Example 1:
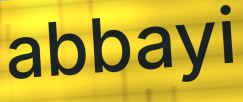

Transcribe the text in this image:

abbayi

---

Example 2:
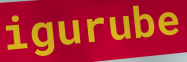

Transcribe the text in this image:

igurube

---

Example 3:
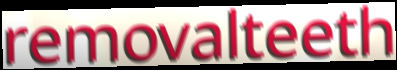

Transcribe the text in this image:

removalteeth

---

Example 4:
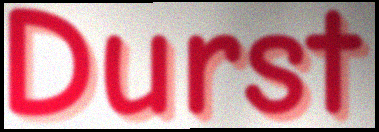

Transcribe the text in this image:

Durst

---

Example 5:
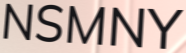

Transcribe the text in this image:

NSMNY